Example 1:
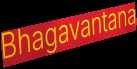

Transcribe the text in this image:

Bhagavantana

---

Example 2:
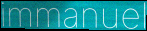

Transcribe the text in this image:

immanuel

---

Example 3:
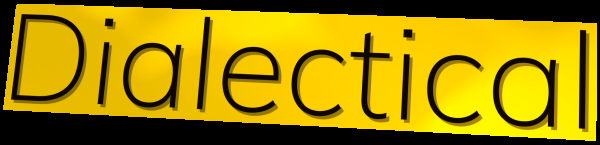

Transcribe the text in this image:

Dialectical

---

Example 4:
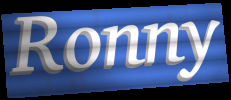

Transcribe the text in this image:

Ronny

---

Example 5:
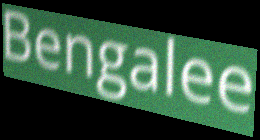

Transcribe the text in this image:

Bengalee